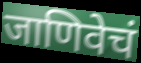
जाणिवेचं